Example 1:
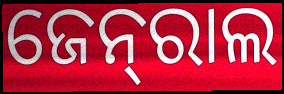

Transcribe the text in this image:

ଜେନ୍‌ରାଲ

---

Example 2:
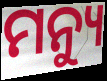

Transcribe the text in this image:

ମନ୍ୟୁ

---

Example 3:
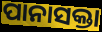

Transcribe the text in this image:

ପାନାସକ୍ତା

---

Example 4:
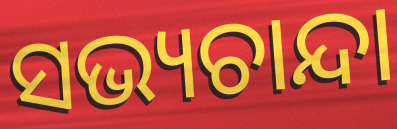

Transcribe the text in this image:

ସଭ୍ୟଚାନ୍ଦା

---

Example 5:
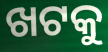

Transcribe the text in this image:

ଖଟକୁ